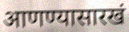
आणण्यासारखं